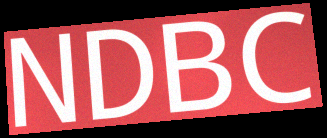
NDBC